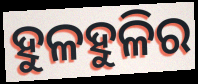
ହୁଳହୁଳିର